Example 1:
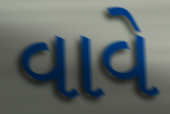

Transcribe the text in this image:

વાવે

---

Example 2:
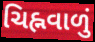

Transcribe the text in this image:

ચિહ્નવાળું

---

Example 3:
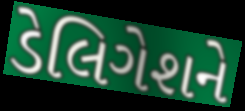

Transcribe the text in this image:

ડેલિગેશને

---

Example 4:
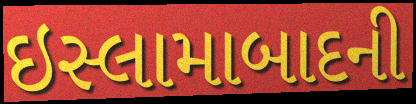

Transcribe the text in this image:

ઇસ્લામાબાદની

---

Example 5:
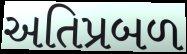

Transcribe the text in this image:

અતિપ્રબળ